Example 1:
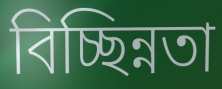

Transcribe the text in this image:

বিচ্ছিন্নতা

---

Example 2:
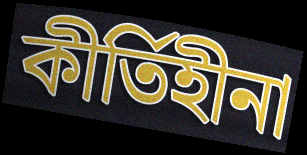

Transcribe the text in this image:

কীর্তিহীনা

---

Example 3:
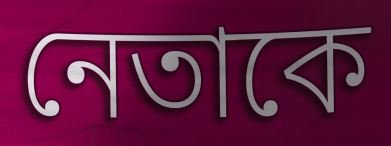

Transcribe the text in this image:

নেতাকে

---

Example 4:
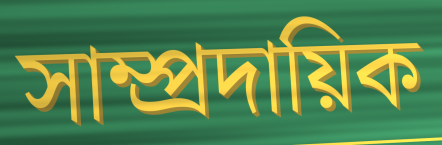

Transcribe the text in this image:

সাম্প্রদায়িক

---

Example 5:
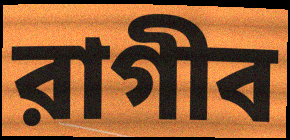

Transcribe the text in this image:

রাগীব